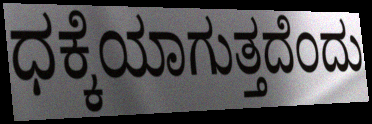
ಧಕ್ಕೆಯಾಗುತ್ತದೆಂದು